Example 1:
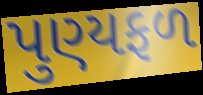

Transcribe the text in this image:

પુણ્યફળ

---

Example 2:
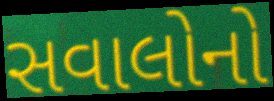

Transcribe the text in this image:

સવાલોનો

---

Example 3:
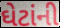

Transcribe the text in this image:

ઘેટાંની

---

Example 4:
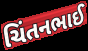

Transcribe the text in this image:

ચિંતનભાઈ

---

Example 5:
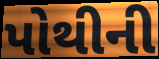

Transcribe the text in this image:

પોથીની